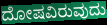
ದೋಷವಿರುವುದು